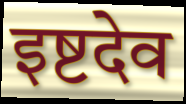
इष्टदेव